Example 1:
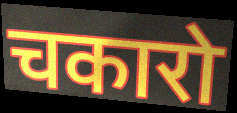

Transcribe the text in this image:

चकारो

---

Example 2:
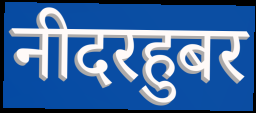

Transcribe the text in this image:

नीदरहुबर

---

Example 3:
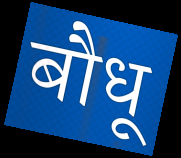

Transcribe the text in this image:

बौधू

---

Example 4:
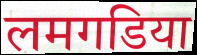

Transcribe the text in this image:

लमगडिया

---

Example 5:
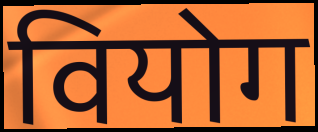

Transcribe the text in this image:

वियोग